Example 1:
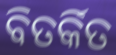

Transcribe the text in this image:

ବିତର୍କିତ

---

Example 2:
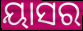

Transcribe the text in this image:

ୟାସର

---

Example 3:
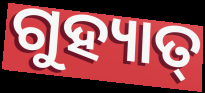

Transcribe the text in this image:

ଗୁହ୍ୟାତ୍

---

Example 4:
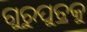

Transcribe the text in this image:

ଗୁରୁପୁତ୍ରକୁ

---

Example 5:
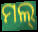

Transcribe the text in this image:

ମଲ୍